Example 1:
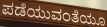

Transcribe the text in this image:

ಪಡೆಯುವಂತೆಯೂ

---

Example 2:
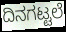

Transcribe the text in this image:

ದಿನಗಟ್ಟಲೆ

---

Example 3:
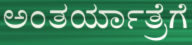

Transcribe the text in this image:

ಅಂತರ್ಯಾತ್ರೆಗೆ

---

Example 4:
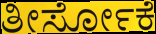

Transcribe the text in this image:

ತೀರ್ಸೋಕೆ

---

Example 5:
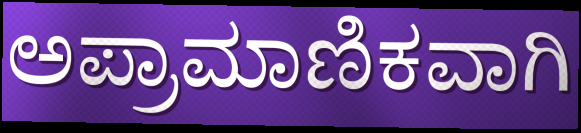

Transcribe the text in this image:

ಅಪ್ರಾಮಾಣಿಕವಾಗಿ